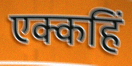
एक्कहिं